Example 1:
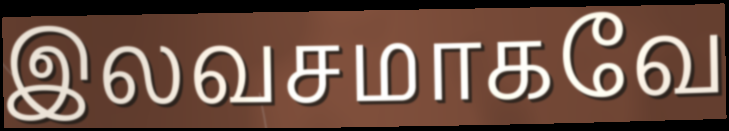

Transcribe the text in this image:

இலவசமாகவே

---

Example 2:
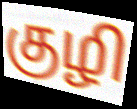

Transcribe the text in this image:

குழி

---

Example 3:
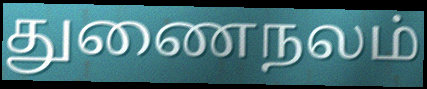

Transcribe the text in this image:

துணைநலம்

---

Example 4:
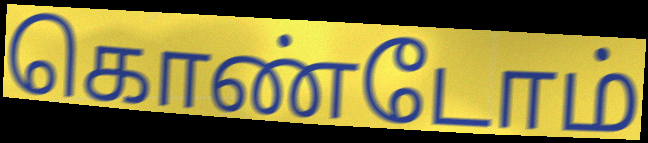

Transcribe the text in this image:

கொண்டோம்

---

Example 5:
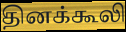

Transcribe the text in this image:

தினக்கூலி